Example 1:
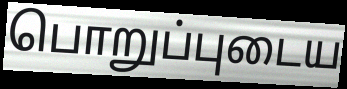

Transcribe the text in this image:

பொறுப்புடைய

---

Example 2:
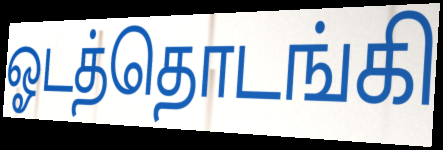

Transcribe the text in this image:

ஓடத்தொடங்கி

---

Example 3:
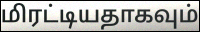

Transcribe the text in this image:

மிரட்டியதாகவும்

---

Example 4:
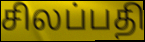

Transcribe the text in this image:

சிலப்பதி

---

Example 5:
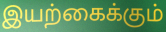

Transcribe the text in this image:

இயற்கைக்கும்